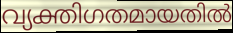
വ്യക്തിഗതമായതിൽ